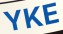
YKE